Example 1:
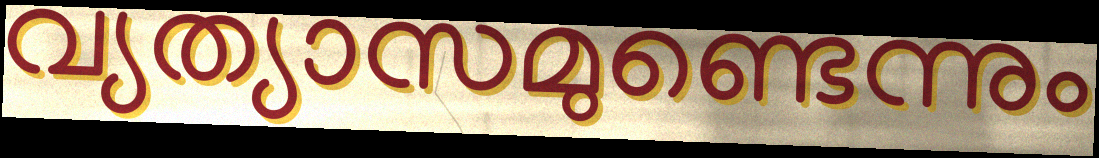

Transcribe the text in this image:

വ്യത്യാസമുണ്ടെന്നും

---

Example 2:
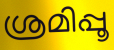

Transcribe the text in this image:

ശ്രമിപ്പൂ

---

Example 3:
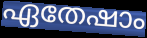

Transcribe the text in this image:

ഏതേഷാം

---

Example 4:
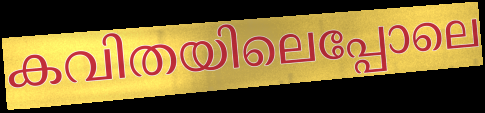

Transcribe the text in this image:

കവിതയിലെപ്പോലെ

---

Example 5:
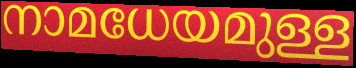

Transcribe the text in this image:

നാമധേയമുള്ള